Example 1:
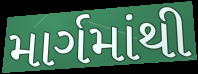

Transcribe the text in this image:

માર્ગમાંથી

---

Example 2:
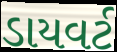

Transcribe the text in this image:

ડાયવર્ટ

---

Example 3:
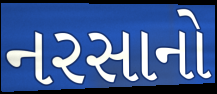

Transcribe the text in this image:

નરસાનો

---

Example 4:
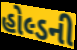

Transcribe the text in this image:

હોલ્ડની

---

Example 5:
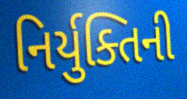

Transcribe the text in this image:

નિર્યુક્તિની